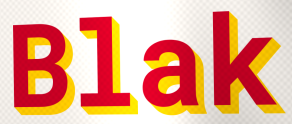
Blak